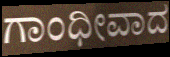
ಗಾಂಧೀವಾದ